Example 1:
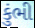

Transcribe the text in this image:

કુંભી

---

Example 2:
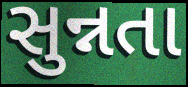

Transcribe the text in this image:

સુન્નતા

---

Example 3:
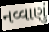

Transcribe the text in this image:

નવ્વાણું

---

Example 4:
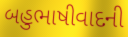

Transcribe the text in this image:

બહુભાષીવાદની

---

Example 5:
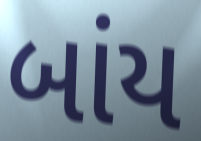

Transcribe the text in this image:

બાંય